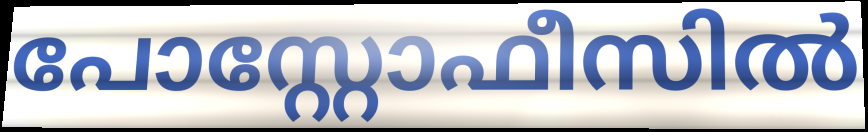
പോസ്റ്റോഫീസിൽ